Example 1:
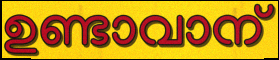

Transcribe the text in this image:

ഉണ്ടാവാന്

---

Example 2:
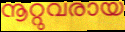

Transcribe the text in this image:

നൂറ്റുവരായ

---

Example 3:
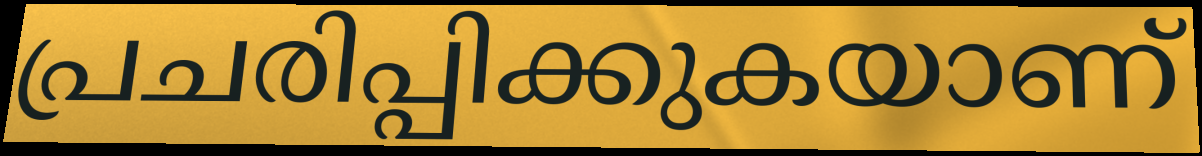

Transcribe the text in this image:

പ്രചരിപ്പിക്കുകയാണ്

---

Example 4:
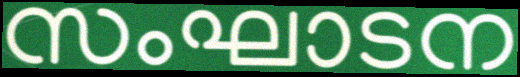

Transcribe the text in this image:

സംഘാടന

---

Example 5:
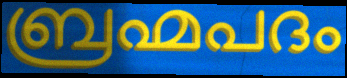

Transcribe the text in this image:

ബ്രഹ്മപദം